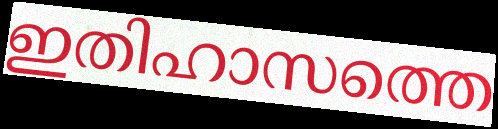
ഇതിഹാസത്തെ